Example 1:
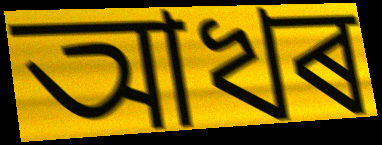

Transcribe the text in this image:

আখৰ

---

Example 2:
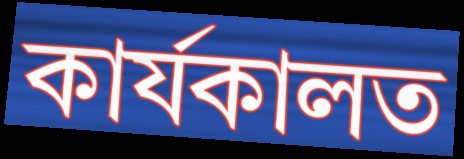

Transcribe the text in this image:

কাৰ্যকালত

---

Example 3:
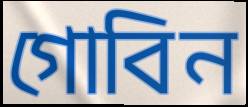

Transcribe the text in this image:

গোবিন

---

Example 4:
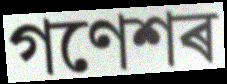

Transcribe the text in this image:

গণেশৰ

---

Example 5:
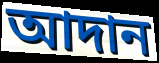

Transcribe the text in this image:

আদান